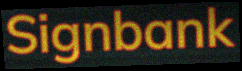
Signbank